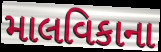
માલવિકાના